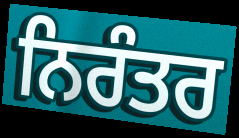
ਨਿਰੰਤਰ